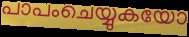
പാപംചെയ്യുകയോ